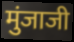
मुंजाजी